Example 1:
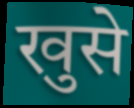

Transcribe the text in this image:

खुसे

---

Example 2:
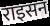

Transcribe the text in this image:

राइसन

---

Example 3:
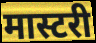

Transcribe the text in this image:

मास्टरी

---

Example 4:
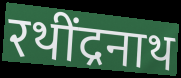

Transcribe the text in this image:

रथींद्रनाथ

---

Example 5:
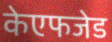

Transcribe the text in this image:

केएफजेड